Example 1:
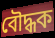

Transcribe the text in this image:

বৌদ্ধক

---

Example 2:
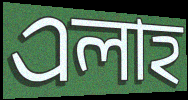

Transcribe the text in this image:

এলাহ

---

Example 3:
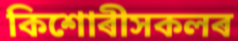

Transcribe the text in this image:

কিশোৰীসকলৰ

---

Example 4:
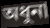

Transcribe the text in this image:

অধুনা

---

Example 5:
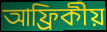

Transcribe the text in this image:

আফ্ৰিকীয়